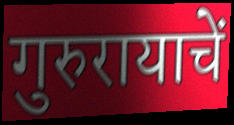
गुरुरायाचें